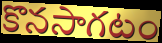
కొనసాగటం